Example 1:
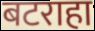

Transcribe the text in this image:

बटराहा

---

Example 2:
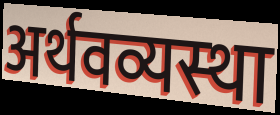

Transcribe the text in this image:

अर्थवव्यस्था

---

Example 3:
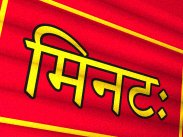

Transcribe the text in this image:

मिनटः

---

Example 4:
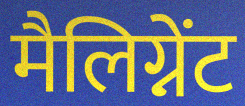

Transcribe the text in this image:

मैलिग्नेंट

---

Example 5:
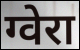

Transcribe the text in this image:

ग्वेरा